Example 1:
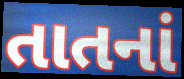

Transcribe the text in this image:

તાતનાં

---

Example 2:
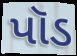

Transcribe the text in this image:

પૉડ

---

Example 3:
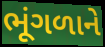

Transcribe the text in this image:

ભૂંગળાને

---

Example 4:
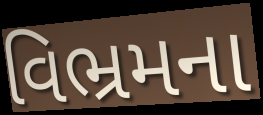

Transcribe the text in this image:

વિભ્રમના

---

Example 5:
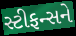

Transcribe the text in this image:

સ્ટીફન્સને